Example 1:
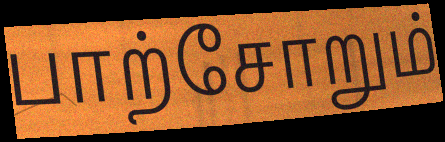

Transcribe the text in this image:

பாற்சோறும்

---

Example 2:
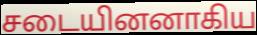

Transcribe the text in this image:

சடையினனாகிய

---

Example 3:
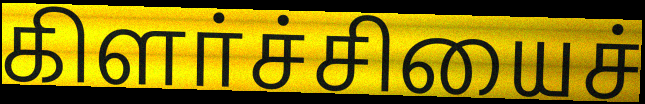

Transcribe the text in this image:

கிளர்ச்சியைச்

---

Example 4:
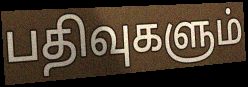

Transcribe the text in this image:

பதிவுகளும்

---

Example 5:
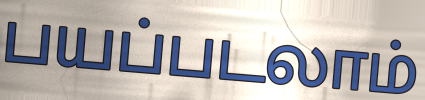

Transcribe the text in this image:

பயப்படலாம்